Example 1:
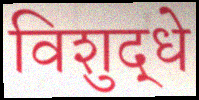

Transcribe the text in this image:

विशुद्धे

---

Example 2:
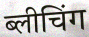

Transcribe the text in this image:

ब्लीचिंग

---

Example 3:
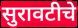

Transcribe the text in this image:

सुरावटीचे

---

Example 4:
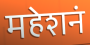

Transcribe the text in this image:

महेशनं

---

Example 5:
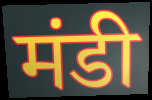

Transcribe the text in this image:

मंडी